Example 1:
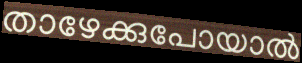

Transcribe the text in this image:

താഴേക്കുപോയാൽ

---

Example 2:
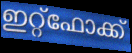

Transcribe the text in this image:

ഇറ്റ്ഫോക്ക്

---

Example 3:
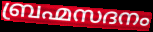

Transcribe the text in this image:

ബ്രഹ്മസദനം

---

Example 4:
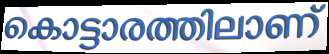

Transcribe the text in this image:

കൊട്ടാരത്തിലാണ്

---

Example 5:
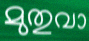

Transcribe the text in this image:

മുതുവാ